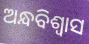
ଅନ୍ଧବିଶ୍ଵାସ